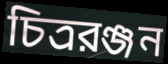
চিত্ররঞ্জন